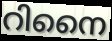
റിനൈ